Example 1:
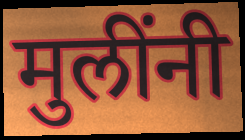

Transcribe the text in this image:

मुलींनी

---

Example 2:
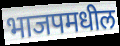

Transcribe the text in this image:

भाजपमधील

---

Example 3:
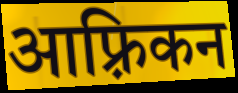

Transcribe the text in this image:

आफ़्रिकन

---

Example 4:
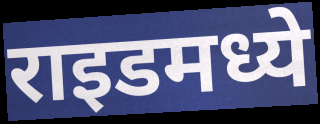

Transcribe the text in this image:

राइडमध्ये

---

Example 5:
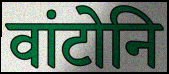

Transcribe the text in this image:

वांटोनि